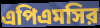
এপিএমসির